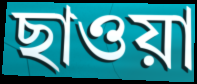
ছাওয়া